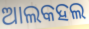
ଆଲକହଲ